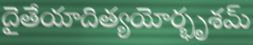
దైతేయాదిత్యయోర్భృశమ్